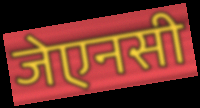
जेएनसी